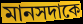
মানসদাকে